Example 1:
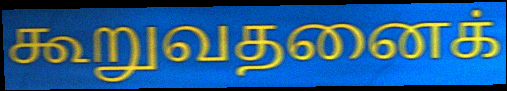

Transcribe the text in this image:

கூறுவதனைக்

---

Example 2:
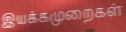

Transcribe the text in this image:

இயக்கமுறைகள்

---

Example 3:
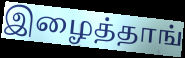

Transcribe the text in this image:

இழைத்தாங்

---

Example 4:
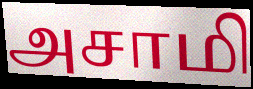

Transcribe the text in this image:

அசாமி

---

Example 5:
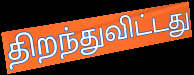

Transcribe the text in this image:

திறந்துவிட்டது